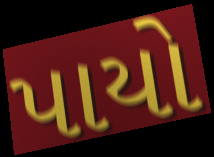
પાયો